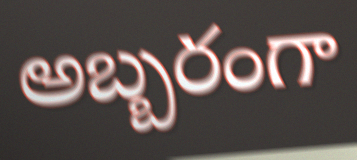
అబ్బరంగా